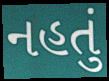
નહતું